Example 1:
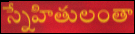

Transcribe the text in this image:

స్నేహితులంతా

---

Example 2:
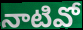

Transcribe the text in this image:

నాటివో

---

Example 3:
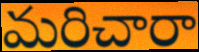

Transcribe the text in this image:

మరిచారా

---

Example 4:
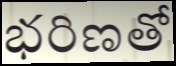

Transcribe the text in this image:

భరిణతో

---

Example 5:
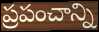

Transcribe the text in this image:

ప్రపంచాన్ని